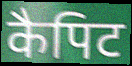
कैपिट